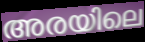
അരയിലെ